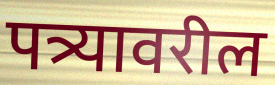
पत्र्यावरील